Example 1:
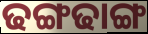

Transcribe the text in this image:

ଢଙ୍ଗଢାଙ୍ଗ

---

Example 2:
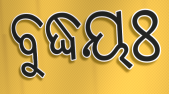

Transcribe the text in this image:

ବୁଦ୍ଧୟଃ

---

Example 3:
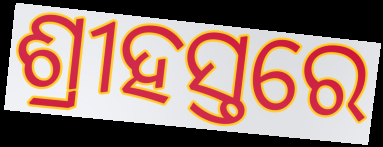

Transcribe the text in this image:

ଶ୍ରୀହସ୍ତରେ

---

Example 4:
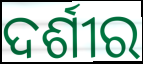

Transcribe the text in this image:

ଦର୍ଶୀର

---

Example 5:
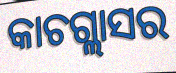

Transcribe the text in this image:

କାଚଗ୍ଲାସର